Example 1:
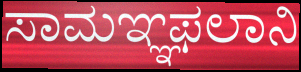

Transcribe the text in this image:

ಸಾಮಞ್ಞಫಲಾನಿ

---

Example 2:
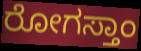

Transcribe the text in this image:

ರೋಗಸ್ತಾಂ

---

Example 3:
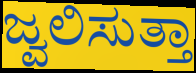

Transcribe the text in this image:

ಜ್ವಲಿಸುತ್ತಾ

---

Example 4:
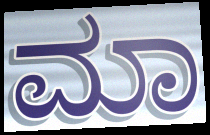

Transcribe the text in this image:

ಮಾ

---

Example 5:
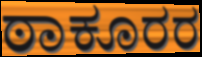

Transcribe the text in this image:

ಠಾಕೂರರ